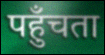
पहुँचता